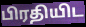
பிரதியிட